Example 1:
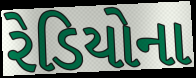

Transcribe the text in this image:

રેડિયોના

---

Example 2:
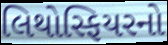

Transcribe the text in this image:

લિથોસ્ફિયરનો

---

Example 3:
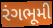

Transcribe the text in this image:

રંગભૂમી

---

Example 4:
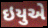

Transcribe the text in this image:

ઇયુએ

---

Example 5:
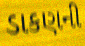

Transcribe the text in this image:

ડાકણની